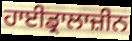
ਹਾਈਡ੍ਰਾਲਾਜ਼ੀਨ